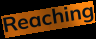
Reaching